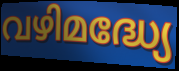
വഴിമദ്ധ്യേ